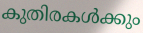
കുതിരകൾക്കും